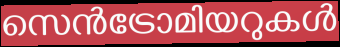
സെൻട്രോമിയറുകൾ